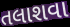
તલાશવા